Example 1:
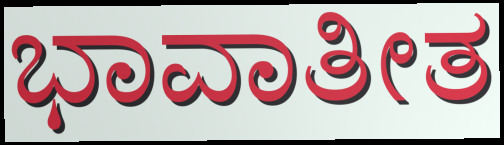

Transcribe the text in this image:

ಭಾವಾತೀತ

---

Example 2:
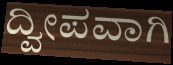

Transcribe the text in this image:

ದ್ವೀಪವಾಗಿ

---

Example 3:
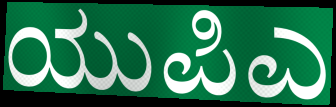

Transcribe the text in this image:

ಯುಪಿಎ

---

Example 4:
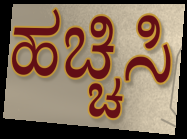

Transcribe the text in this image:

ಹಚ್ಚಿಸಿ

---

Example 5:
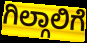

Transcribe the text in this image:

ಗಿಲ್ಗಾಲಿಗೆ